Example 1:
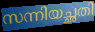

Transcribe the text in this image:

സന്നിയച്ഛതി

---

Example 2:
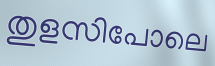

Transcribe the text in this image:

തുളസിപോലെ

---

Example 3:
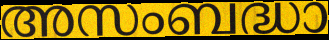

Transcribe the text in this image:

അസംബദ്ധാ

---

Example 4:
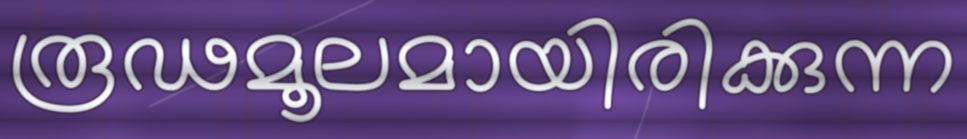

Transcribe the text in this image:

രൂഢമൂലമായിരിക്കുന്ന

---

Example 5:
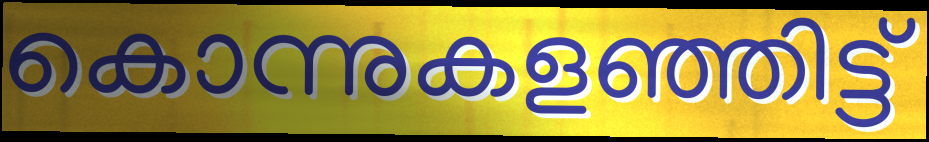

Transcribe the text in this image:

കൊന്നുകളഞ്ഞിട്ട്